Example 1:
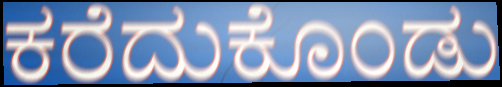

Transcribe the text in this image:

ಕರೆದುಕೊಂಡು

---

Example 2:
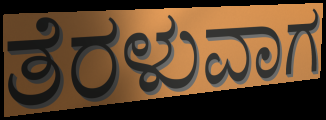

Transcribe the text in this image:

ತೆರಳುವಾಗ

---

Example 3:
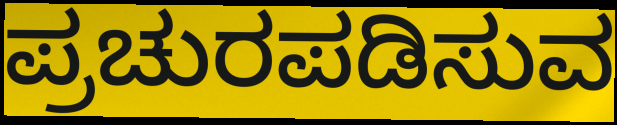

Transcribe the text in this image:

ಪ್ರಚುರಪಡಿಸುವ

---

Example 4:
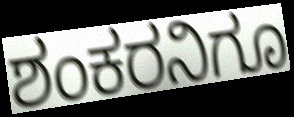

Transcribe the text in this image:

ಶಂಕರನಿಗೂ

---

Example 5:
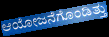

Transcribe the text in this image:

ಆಯೋಜನೆಗೊಂಡಿತ್ತು